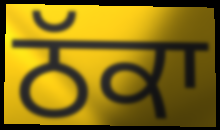
ਠੱਕਾ